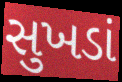
સુખડાં